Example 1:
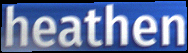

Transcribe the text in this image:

heathen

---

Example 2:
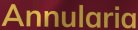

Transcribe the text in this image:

Annularia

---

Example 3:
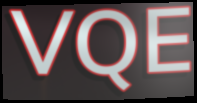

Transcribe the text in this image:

VQE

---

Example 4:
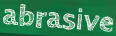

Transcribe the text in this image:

abrasive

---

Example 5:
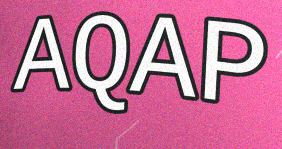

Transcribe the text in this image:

AQAP